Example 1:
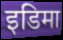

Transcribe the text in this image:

इडिमा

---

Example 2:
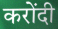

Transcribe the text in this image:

करोंदी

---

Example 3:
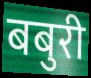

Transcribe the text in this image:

बबुरी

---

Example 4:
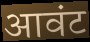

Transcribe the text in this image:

आवंट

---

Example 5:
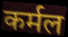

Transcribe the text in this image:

कर्मल